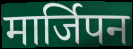
मार्जिपन